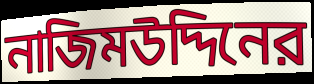
নাজিমউদ্দিনের